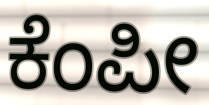
ಕೆಂಪೀ